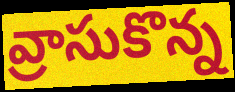
వ్రాసుకొన్న